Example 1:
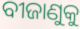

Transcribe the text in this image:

ବୀଜାଣୁକୁ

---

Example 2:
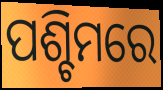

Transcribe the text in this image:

ପଶ୍ଚିମରେ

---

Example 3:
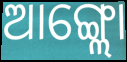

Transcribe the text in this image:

ଆଙ୍ଗ୍ଲୋ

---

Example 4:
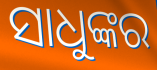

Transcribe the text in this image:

ସାଧୁଙ୍କର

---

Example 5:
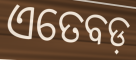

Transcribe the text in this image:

ଏତେବଡ଼